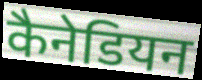
कैनेडियन